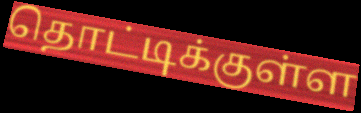
தொட்டிக்குள்ள